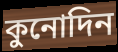
কুনোদিন